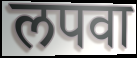
लपवा